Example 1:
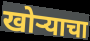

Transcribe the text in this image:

खोर्‍याचा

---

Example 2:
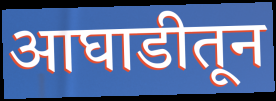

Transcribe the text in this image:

आघाडीतून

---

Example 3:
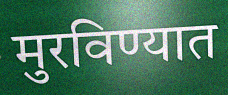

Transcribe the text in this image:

मुरविण्यात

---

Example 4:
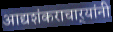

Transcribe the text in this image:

आद्यशंकराचार्यांनी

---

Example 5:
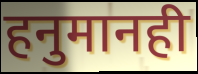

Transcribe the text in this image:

हनुमानही